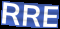
RRE